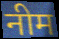
नीम